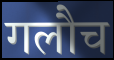
गलौच